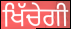
ਖਿੱਚੇਗੀ